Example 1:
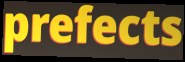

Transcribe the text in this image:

prefects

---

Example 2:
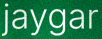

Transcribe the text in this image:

jaygar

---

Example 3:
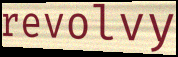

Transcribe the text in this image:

revolvy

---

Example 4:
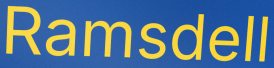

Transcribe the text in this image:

Ramsdell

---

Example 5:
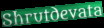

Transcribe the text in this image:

Shrutdevata